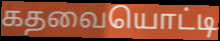
கதவையொட்டி